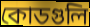
কোডগুলি